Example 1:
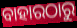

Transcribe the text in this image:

ବାହାରଠାରୁ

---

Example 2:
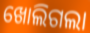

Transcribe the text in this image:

ଖୋଲିଗଲା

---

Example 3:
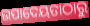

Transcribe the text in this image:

ଉପାଦେୟତାଠାରୁ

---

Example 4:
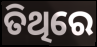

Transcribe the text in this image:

ତିଥିରେ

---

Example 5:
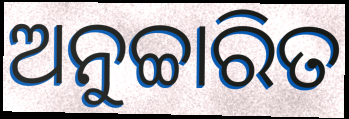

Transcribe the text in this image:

ଅନୁଚ୍ଚାରିତ